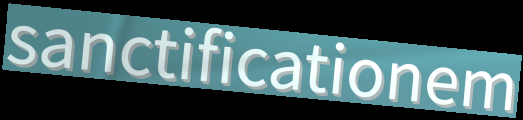
sanctificationem